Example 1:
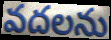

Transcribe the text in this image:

వదలను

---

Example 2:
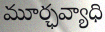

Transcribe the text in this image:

మూర్ఛవ్యాధి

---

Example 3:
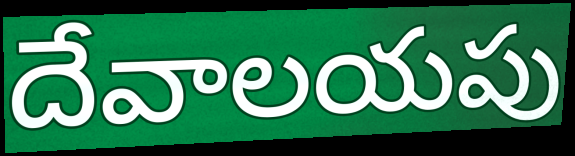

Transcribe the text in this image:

దేవాలయపు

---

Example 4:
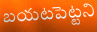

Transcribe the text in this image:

బయటపెట్టని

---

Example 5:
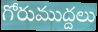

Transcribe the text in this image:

గోరుముద్దలు